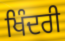
ਖਿੰਦਰੀ